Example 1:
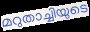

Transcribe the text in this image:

മറുതാച്ചിയുടെ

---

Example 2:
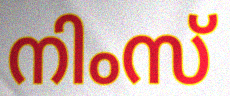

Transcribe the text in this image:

നിംസ്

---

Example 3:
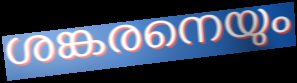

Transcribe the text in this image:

ശങ്കരനെയും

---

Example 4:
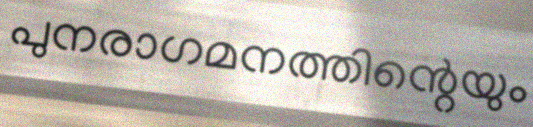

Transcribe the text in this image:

പുനരാഗമനത്തിന്റെയും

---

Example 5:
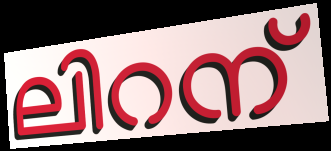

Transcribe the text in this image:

ലിറന്